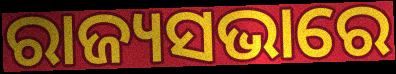
ରାଜ୍ୟସଭାରେ